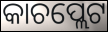
କାଚପ୍ଲେଟ